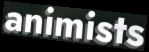
animists